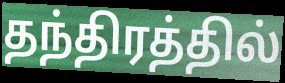
தந்திரத்தில்